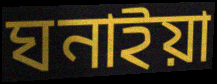
ঘনাইয়া